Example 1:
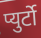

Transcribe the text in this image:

प्युर्टो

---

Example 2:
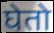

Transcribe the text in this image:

घेतो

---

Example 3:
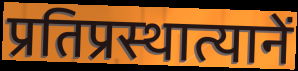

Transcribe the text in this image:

प्रतिप्रस्थात्यानें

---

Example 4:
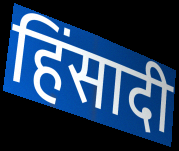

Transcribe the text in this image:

हिंसादी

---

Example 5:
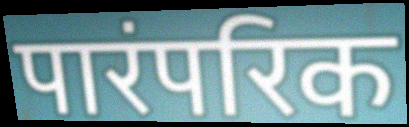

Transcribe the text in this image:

पारंपरिक